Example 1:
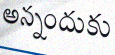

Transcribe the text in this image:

అన్నందుకు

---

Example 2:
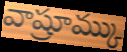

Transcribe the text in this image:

వాష్రూమ్కు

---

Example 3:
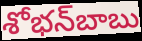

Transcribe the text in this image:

శోభన్‌బాబు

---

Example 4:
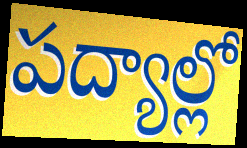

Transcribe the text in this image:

పద్యాల్లో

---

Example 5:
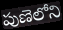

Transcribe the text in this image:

పుణెలోని